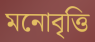
মনোবৃত্তি